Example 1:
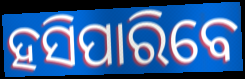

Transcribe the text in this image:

ହସିପାରିବେ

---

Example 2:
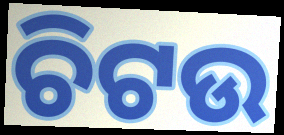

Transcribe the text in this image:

ଚିଟଉ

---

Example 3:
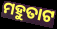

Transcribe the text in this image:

ମହୁତାଟ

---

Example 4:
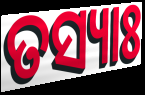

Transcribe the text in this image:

ତସ୍ୟାଃ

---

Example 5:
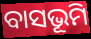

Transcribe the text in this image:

ବାସଭୂମି